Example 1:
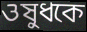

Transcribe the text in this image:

ওষুধকে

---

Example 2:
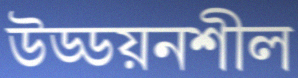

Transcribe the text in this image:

উড্ডয়নশীল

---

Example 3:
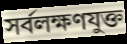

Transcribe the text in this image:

সর্বলক্ষণযুক্ত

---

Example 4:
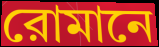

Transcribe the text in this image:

রোমানে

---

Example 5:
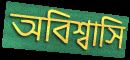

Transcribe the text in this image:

অবিশ্বাসি